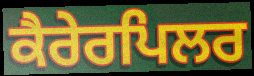
ਕੈਰੇਰਪਿਲਰ